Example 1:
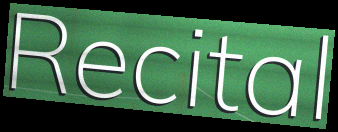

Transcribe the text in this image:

Recital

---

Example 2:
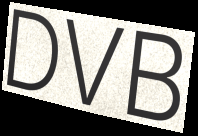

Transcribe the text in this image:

DVB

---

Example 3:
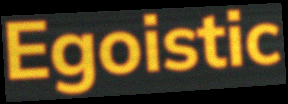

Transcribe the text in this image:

Egoistic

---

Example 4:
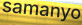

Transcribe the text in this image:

samanyo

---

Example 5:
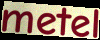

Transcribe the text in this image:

metel